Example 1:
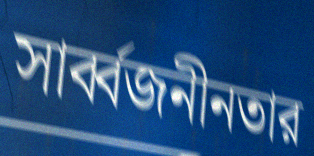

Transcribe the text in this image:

সার্ব্বজনীনতার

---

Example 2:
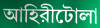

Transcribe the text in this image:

আহিরীটোলা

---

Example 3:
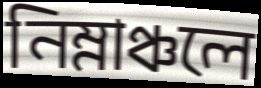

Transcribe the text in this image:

নিম্নাঞ্চলে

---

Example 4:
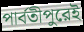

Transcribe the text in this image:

পার্বতীপুরেই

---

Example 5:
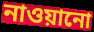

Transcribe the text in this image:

নাওয়ানো